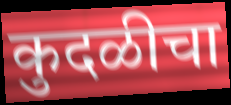
कुदळीचा